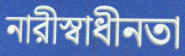
নারীস্বাধীনতা